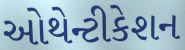
ઓથેન્ટીકેશન